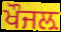
ਖੌਜਲ਼